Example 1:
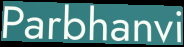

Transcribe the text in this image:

Parbhanvi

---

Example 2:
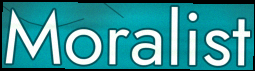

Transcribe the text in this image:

Moralist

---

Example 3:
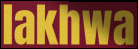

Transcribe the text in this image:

lakhwa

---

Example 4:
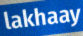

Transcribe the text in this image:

lakhaay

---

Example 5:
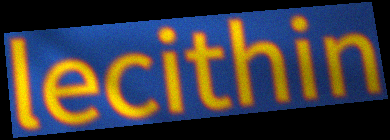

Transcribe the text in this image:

lecithin